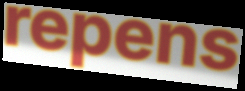
repens